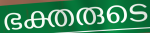
ഭക്തരുടെ